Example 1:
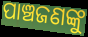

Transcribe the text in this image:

ପାଞ୍ଚଜଣଙ୍କୁ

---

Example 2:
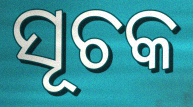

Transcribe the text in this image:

ସୂଚକ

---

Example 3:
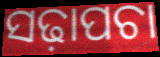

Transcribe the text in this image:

ସଢ଼ାପଚା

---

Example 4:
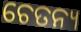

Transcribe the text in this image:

ଚେତନ୍ୟ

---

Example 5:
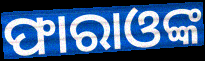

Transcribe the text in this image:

ଫାରାଓଙ୍କ